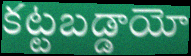
కట్టబడ్డాయో